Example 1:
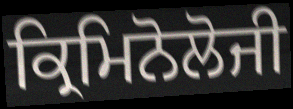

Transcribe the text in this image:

ਕ੍ਰਿਮਿਨੋਲੋਜੀ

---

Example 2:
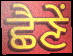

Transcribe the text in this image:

ਛੈਣੇਂ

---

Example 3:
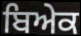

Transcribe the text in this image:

ਬਿਅੇਕ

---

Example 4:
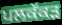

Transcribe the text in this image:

ਪਲਕੱਕੜ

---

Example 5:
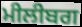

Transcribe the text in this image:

ਮੀਲੀਬਗ